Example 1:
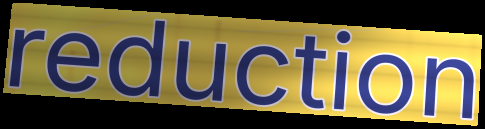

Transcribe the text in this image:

reduction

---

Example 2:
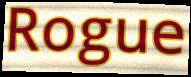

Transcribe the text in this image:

Rogue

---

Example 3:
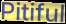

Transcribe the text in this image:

Pitiful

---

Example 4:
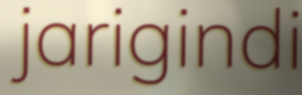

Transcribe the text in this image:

jarigindi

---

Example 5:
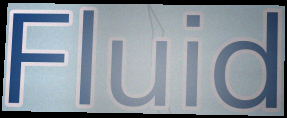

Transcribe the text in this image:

Fluid